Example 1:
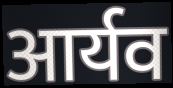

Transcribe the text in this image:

आर्यव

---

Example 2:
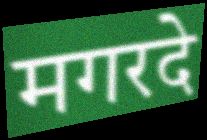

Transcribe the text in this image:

मगरदे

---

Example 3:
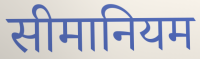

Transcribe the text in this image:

सीमानियम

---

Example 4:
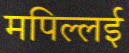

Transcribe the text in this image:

मपिल्लई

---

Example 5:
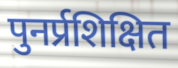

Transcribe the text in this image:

पुनर्प्रशिक्षित